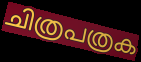
ചിത്രപത്രക